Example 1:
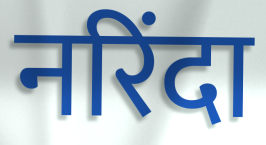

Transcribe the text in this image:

नरिंदा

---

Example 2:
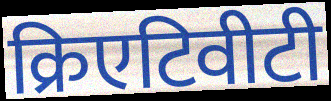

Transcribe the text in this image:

क्रिएटिवीटी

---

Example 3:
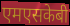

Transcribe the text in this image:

एमएसकेबी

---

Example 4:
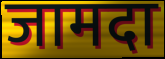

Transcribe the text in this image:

जामदा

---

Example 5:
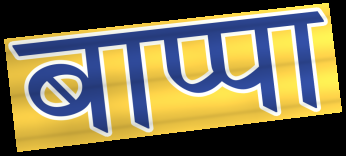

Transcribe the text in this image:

बाप्पा